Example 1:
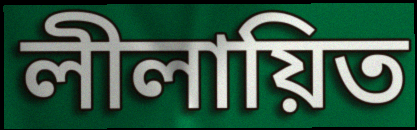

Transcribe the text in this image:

লীলায়িত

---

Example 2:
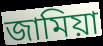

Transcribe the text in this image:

জামিয়া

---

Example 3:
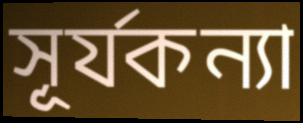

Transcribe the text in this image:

সূর্যকন্যা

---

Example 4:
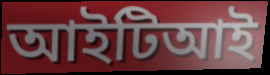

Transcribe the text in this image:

আইটিআই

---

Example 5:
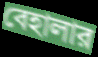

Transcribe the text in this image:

বেহালার